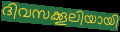
ദിവസക്കൂലിയായി